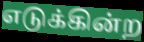
எடுக்கின்ற